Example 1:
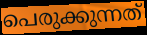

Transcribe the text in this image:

പെരുക്കുന്നത്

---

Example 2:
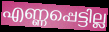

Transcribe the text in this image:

എണ്ണപ്പെട്ടില്ല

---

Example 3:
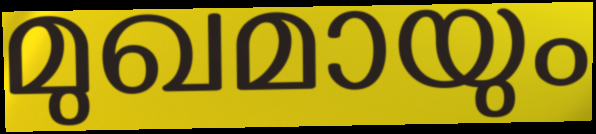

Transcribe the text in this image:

മുഖമായും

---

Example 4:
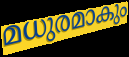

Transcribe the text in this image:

മധുരമാകും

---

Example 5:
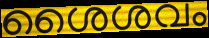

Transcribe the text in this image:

ശൈശവം